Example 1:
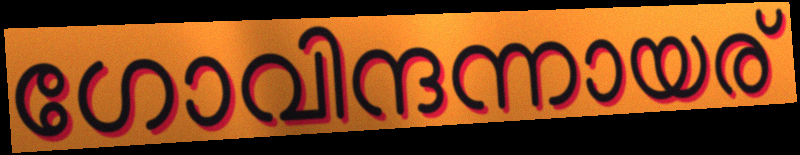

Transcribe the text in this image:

ഗോവിന്ദന്നായര്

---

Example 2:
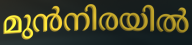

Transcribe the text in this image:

മുൻനിരയിൽ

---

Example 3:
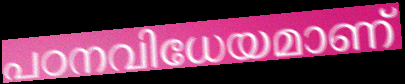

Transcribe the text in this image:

പഠനവിധേയമാണ്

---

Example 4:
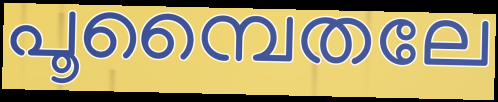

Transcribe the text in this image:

പൂമ്പൈതലേ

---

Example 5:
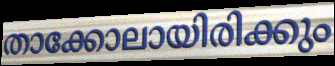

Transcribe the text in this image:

താക്കോലായിരിക്കും